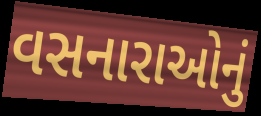
વસનારાઓનું